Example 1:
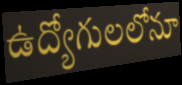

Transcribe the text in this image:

ఉద్యోగులలోనూ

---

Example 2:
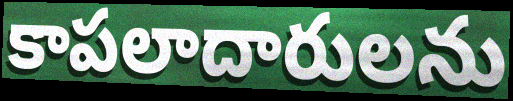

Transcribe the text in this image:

కాపలాదారులను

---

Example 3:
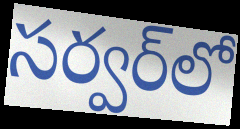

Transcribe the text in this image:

సర్వర్‌లో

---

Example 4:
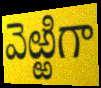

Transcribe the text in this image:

వెఱ్ఱిగా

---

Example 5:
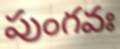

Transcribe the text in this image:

పుంగవః